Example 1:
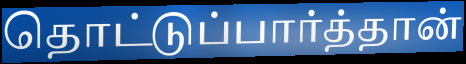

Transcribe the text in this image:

தொட்டுப்பார்த்தான்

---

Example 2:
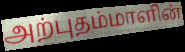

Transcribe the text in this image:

அற்புதம்மாளின்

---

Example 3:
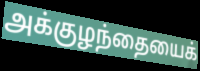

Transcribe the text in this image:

அக்குழந்தையைக்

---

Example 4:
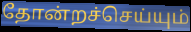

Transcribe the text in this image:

தோன்றச்செய்யும்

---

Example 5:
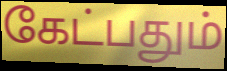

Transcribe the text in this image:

கேட்பதும்